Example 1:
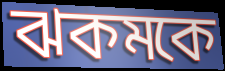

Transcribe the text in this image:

ঝকমকে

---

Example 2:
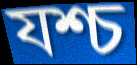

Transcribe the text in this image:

যশ্চ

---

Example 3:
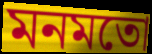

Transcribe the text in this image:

মনমতো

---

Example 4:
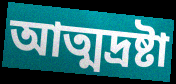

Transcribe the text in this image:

আত্মদ্রষ্টা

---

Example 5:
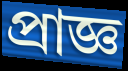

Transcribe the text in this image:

প্রাজ্ঞ